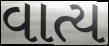
વાત્ય